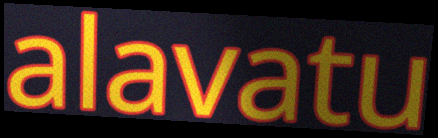
alavatu